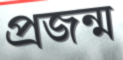
প্রজন্ম